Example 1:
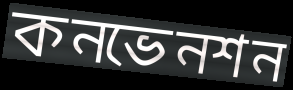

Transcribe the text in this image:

কনভেনশন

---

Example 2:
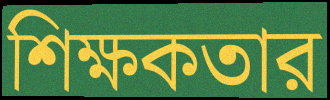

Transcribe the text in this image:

শিক্ষকতার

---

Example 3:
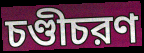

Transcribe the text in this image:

চণ্ডীচরণ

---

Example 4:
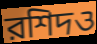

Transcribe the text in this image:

রশিদও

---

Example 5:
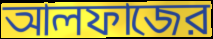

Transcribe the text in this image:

আলফাজের